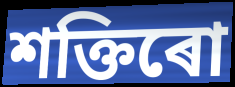
শক্তিৰো